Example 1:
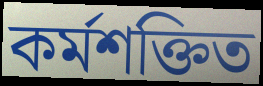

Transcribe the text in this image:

কৰ্মশক্তিত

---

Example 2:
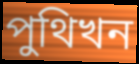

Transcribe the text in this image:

পুথিখন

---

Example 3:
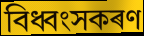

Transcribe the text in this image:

বিধ্বংসকৰণ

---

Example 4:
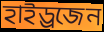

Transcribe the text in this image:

হাইড্ৰজেন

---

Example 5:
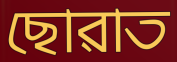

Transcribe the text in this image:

ছোৱাত